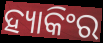
ହ୍ୟାକିଂର